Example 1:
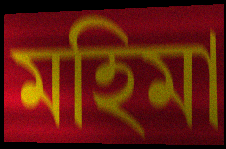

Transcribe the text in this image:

মহিমা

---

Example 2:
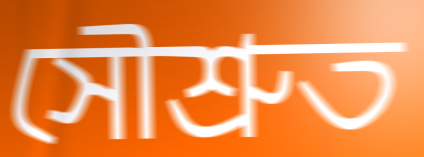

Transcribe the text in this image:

সৌশ্ৰুত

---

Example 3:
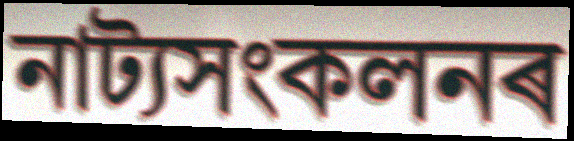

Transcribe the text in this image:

নাট্যসংকলনৰ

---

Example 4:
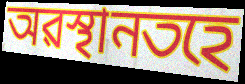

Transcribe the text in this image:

অৱস্থানতহে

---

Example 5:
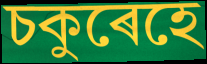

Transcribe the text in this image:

চকুৰেহে